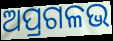
ଅପ୍ରଗଳଭ